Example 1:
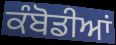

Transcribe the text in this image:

ਕੰਬੋਡੀਆਂ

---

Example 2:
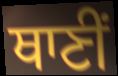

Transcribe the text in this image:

ਥਾਣੀਂ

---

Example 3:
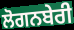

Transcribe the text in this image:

ਲੋਗਨਬੇਰੀ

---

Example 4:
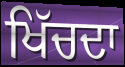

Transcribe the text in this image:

ਖਿੱਚਦਾ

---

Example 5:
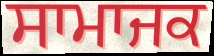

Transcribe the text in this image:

ਸਾਮਾਜਕ